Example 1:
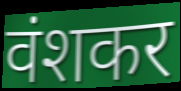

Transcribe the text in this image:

वंशकर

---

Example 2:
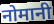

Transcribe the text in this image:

नोमानी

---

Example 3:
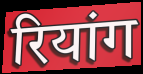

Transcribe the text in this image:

रियांग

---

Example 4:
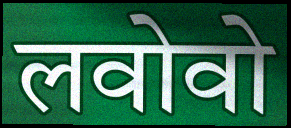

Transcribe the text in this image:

लवोवो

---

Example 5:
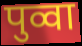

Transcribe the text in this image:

पुव्वा